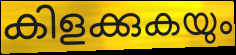
കിളക്കുകയും